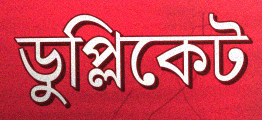
ডুপ্লিকেট